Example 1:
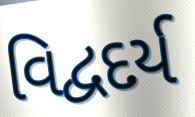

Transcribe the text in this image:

વિદ્વદર્ય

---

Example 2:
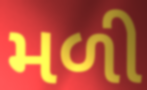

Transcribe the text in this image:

મળી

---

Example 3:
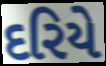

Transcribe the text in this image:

દરિયે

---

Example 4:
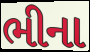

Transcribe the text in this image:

ભીના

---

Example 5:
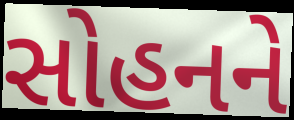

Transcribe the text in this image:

સોહનને